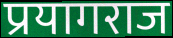
प्रयागराज